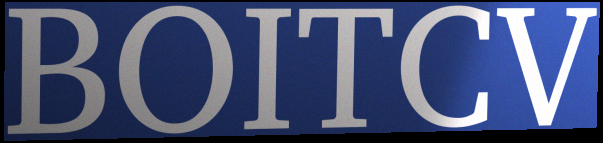
BOITCV